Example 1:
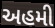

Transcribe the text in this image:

અહમી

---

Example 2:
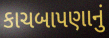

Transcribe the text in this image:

કાચબાપણાનું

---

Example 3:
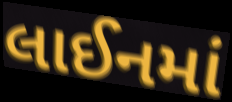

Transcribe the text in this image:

લાઈનમાં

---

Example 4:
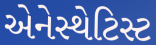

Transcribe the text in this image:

એનેસ્થેટિસ્ટ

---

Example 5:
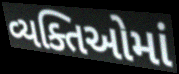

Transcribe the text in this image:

વ્યક્તિઓમાં